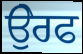
ਉੇਰਫ